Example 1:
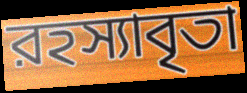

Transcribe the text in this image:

রহস্যাবৃতা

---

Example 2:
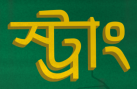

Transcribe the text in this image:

স্ট্রাং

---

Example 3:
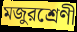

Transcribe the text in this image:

মজুরশ্রেণী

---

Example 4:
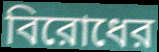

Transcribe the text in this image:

বিরোধের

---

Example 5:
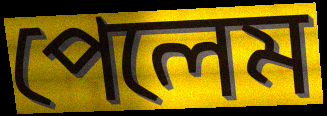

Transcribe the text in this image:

পেলেম